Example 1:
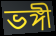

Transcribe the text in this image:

ভঙ্গী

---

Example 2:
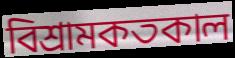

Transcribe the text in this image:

বিশ্রামকতকাল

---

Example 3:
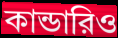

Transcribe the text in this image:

কান্ডারিও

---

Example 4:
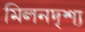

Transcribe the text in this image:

মিলনদৃশ্য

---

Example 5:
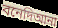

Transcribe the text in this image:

বনেদিআনা